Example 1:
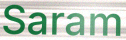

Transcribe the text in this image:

Saram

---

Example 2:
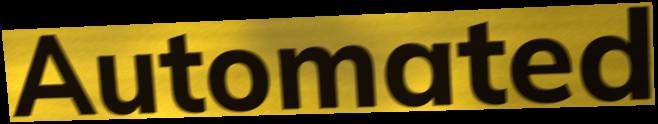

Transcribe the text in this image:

Automated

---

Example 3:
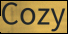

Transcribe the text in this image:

Cozy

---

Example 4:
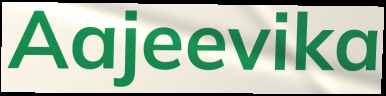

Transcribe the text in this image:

Aajeevika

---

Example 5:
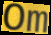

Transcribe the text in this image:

Om